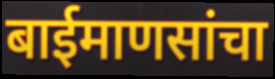
बाईमाणसांचा